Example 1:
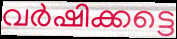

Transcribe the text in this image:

വർഷിക്കട്ടെ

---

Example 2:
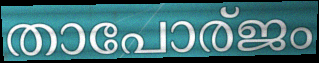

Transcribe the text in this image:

താപോര്ജം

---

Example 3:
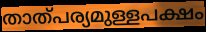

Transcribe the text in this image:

താത്പര്യമുള്ളപക്ഷം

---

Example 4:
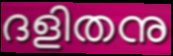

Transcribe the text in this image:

ദളിതനു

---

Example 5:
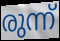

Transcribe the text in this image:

രുന്ന്